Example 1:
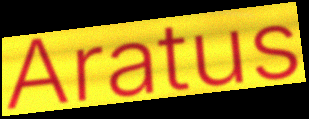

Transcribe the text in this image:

Aratus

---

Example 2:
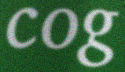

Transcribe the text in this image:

cog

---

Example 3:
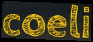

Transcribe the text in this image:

coeli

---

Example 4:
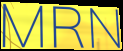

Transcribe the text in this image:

MRN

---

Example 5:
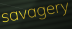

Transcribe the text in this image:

savagery